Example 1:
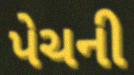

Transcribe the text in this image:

પેચની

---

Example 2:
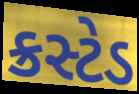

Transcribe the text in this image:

ક્રસ્ટેડ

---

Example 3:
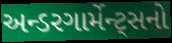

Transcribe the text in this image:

અન્ડરગાર્મેન્ટ્સનો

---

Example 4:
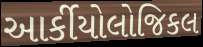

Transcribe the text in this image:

આર્કીયોલોજિકલ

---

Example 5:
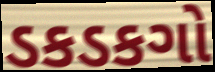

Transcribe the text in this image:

ડકડકગો